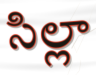
సిల్లా